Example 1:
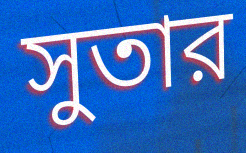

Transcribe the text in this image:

সুতার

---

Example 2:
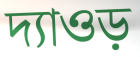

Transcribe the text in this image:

দ্যাওড়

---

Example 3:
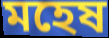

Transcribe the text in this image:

মহেষ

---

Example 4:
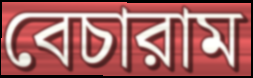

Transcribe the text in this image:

বেচারাম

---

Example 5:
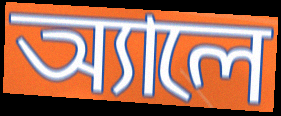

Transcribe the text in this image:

অ্যালে